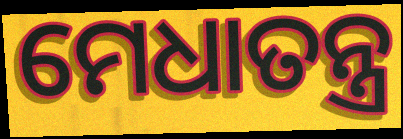
ମେଧାତନ୍ତ୍ର